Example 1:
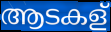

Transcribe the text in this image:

ആടകള്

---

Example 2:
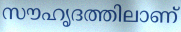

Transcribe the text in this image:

സൗഹൃദത്തിലാണ്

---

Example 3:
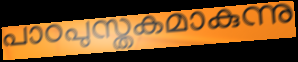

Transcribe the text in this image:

പാഠപുസ്തകമാകുന്നു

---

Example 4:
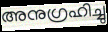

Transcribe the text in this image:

അനുഗ്രഹിച്ചു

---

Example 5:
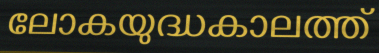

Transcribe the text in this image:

ലോകയുദ്ധകാലത്ത്